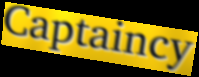
Captaincy